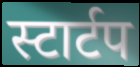
स्टार्टप